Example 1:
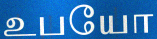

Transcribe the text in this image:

உபயோ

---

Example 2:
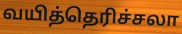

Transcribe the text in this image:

வயித்தெரிச்சலா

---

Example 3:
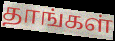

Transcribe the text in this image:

தாங்கள்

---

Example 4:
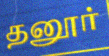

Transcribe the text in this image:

தனூர்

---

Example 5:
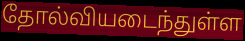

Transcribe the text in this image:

தோல்வியடைந்துள்ள